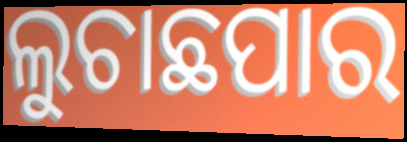
ଲୁଚାଛପାର